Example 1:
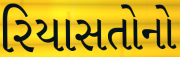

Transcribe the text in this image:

રિયાસતોનો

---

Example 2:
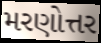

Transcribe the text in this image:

મરણોત્તર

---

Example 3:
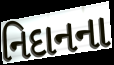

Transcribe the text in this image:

નિદાનના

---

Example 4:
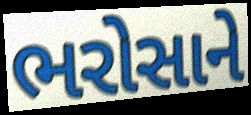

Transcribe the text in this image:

ભરોસાને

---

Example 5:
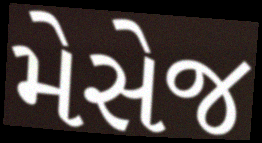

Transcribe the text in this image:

મેસેજ